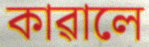
কাৱালে